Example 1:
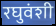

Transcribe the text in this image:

रघुवंशी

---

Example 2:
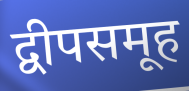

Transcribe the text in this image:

द्वीपसमूह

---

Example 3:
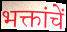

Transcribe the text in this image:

भक्तांचें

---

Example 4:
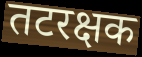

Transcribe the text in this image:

तटरक्षक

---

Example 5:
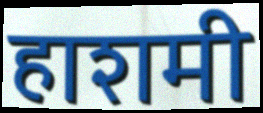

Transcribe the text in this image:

हाशमी